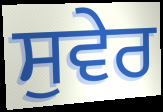
ਸੁਵੇਰ